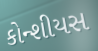
કોન્શીયસ